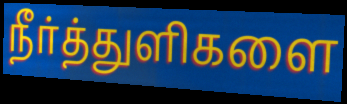
நீர்த்துளிகளை